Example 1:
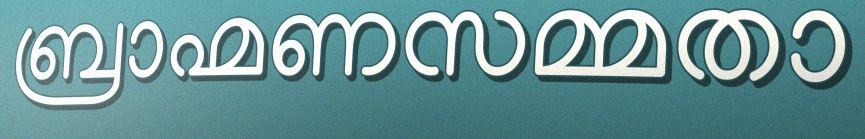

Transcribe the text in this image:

ബ്രാഹ്മണസമ്മതാ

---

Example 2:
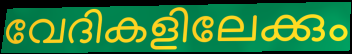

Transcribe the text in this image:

വേദികളിലേക്കും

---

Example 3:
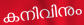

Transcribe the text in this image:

കനിവിനും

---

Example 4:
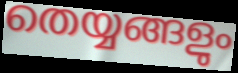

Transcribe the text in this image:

തെയ്യങ്ങളും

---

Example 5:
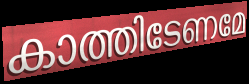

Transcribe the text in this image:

കാത്തിടേണമേ